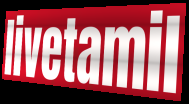
livetamil